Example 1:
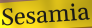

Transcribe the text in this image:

Sesamia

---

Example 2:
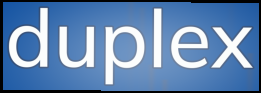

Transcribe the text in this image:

duplex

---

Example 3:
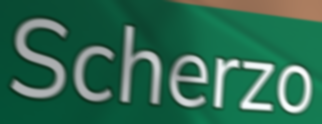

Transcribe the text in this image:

Scherzo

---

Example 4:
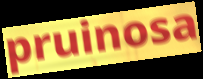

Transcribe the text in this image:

pruinosa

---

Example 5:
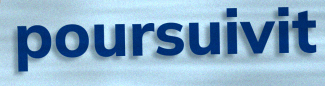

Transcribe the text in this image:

poursuivit